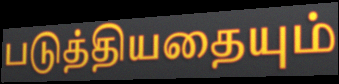
படுத்தியதையும்